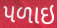
પળાઇ